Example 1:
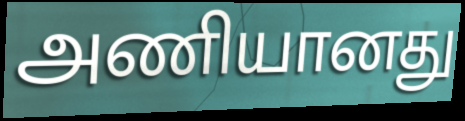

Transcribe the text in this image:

அணியானது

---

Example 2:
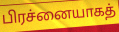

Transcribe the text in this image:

பிரச்னையாகத்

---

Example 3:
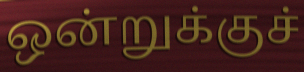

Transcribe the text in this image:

ஒன்றுக்குச்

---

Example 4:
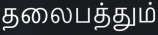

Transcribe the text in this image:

தலைபத்தும்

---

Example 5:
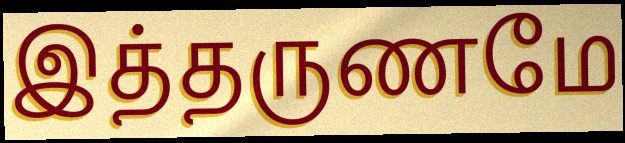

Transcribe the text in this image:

இத்தருணமே